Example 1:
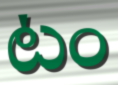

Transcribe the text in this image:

టం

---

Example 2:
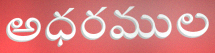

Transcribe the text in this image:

అధరముల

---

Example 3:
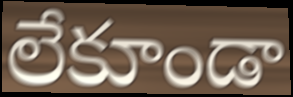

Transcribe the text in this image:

లేకూండా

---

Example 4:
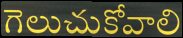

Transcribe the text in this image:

గెలుచుకోవాలి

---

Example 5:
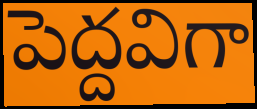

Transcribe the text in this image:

పెద్దవిగా